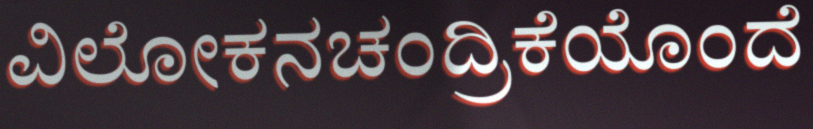
ವಿಲೋಕನಚಂದ್ರಿಕೆಯೊಂದೆ